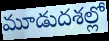
మూడుదశల్లో